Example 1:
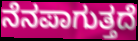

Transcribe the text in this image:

ನೆನಪಾಗುತ್ತದೆ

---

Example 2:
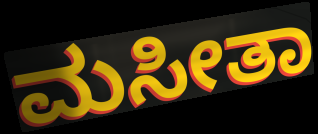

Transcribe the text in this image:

ಮಸೀತಾ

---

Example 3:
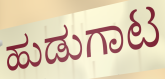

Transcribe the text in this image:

ಹುಡುಗಾಟ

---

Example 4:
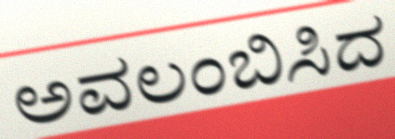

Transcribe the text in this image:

ಅವಲಂಬಿಸಿದ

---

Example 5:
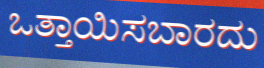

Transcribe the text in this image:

ಒತ್ತಾಯಿಸಬಾರದು